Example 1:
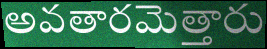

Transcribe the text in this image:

అవతారమెత్తారు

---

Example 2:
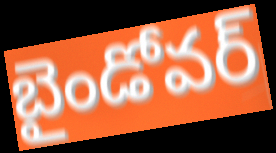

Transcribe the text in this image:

బైండోవర్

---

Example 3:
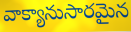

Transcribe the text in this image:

వాక్యానుసారమైన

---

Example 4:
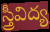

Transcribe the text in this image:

స్త్రీవిద్య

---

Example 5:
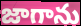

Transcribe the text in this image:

జాగాను